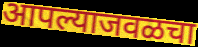
आपल्याजवळचा